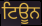
ਟਿਊਨ